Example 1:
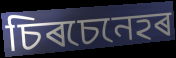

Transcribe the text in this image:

চিৰচেনেহৰ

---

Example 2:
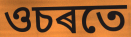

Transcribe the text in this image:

ওচৰতে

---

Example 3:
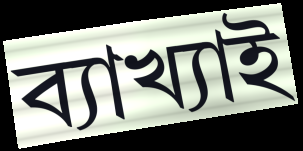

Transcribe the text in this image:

ব্যাখ্যাই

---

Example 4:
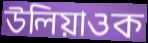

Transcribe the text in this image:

উলিয়াওক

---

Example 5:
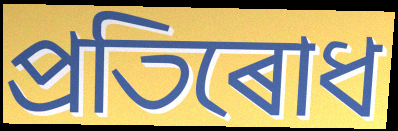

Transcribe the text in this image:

প্ৰতিৰোধ